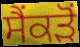
ਸੈਂਕੜੋਂ